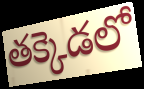
తక్కెడలో